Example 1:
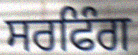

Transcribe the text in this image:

ਸਰਫਿੰਗ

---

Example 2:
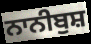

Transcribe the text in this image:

ਨਾਨੀਬੁਸ਼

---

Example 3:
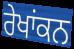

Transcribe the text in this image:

ਰੇਖਾਂਕਨ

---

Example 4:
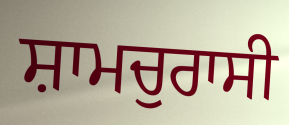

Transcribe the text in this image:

ਸ਼ਾਮਚੁਰਾਸੀ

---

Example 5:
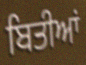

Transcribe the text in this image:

ਬਿਤੀਆਂ